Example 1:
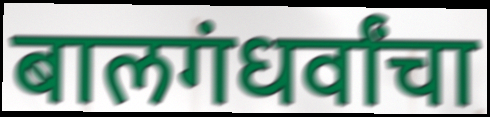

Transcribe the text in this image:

बालगंधर्वांचा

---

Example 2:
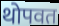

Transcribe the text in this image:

थोपवत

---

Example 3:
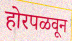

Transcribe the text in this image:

होरपळवून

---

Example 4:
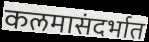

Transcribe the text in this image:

कलमासंदर्भात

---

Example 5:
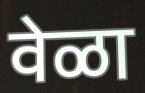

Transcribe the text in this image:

वेळा